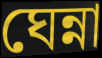
ঘেন্না